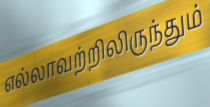
எல்லாவற்றிலிருந்தும்